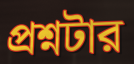
প্রশ্নটার